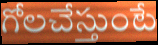
గోలచేస్తుంటే